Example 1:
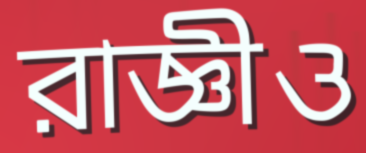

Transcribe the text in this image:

রাজ্ঞীও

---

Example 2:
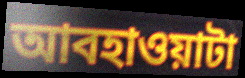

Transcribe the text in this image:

আবহাওয়াটা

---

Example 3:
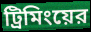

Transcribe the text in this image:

ট্রিমিংয়ের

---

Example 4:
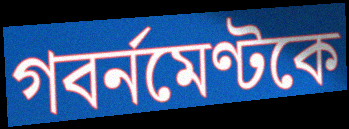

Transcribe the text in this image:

গবর্নমেণ্টকে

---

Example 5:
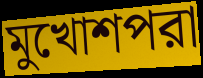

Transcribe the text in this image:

মুখোশপরা